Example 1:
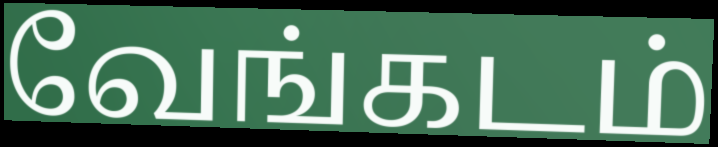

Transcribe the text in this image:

வேங்கடம்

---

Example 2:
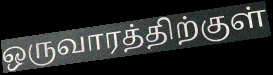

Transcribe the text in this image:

ஒருவாரத்திற்குள்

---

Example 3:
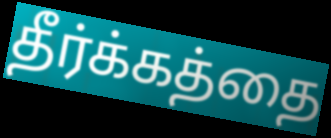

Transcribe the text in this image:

தீர்க்கத்தை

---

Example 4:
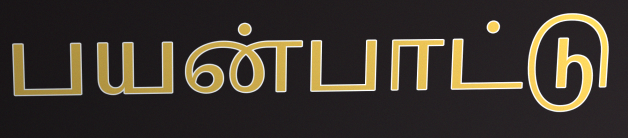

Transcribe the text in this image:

பயன்பாட்டு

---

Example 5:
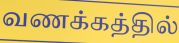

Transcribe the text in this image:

வணக்கத்தில்